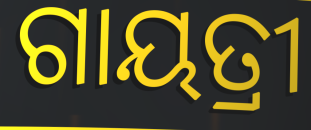
ଗାୟତ୍ରୀ